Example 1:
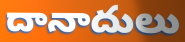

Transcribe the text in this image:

దానాదులు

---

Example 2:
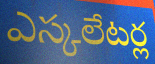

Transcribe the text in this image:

ఎస్కలేటర్ల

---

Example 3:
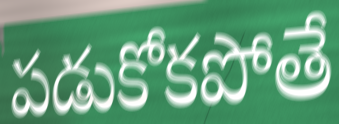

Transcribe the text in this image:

పడుకోకపోతే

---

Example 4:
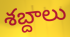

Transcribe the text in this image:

శబ్దాలు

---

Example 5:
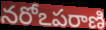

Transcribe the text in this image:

నరోఽపరాణి